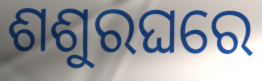
ଶଶୁରଘରେ